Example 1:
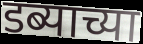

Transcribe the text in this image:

डब्याच्या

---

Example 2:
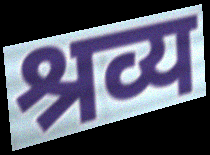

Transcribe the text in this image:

श्रव्य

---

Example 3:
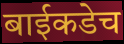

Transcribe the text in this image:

बाईकडेच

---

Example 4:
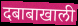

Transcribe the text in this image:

दबाबाखाली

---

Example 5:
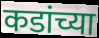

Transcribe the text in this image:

कडांच्या